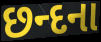
છન્દના